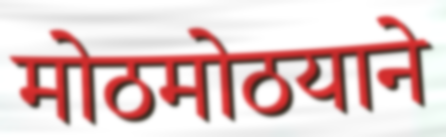
मोठमोठयाने